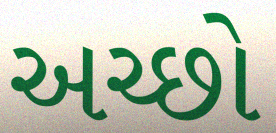
અચ્છો